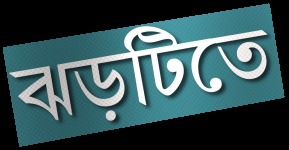
ঝড়টিতে